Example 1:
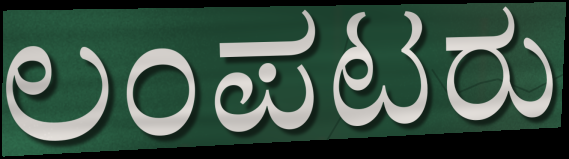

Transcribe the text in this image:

ಲಂಪಟರು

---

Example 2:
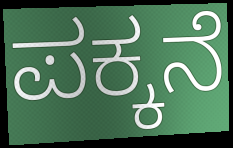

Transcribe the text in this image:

ಪಕ್ಕನೆ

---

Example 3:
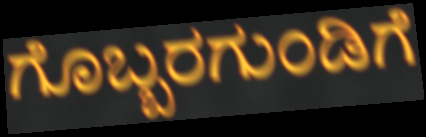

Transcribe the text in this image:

ಗೊಬ್ಬರಗುಂಡಿಗೆ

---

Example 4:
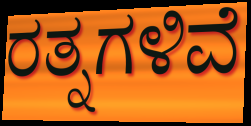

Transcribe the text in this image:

ರತ್ನಗಳಿವೆ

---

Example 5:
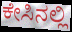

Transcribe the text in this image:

ಕೇಸಿನಲ್ಲಿ